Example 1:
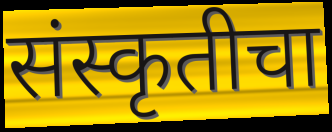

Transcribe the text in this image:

संस्कृतीचा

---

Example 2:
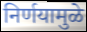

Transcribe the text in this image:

निर्णयामुळे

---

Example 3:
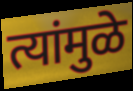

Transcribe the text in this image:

त्यांमुळे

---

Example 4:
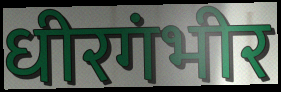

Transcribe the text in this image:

धीरगंभीर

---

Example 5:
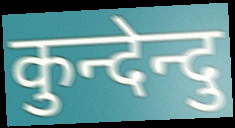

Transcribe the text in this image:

कुन्देन्दु